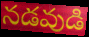
నడవుడి